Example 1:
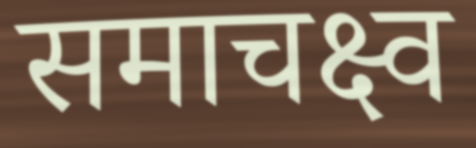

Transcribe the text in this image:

समाचक्ष्व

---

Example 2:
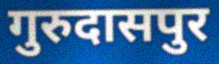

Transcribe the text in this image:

गुरुदासपुर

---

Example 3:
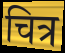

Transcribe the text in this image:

चित्र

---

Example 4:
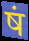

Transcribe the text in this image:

षं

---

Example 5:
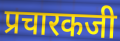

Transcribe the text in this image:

प्रचारकजी